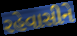
રહેવાસીને